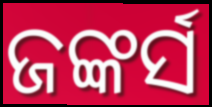
ଜଙ୍କର୍ସ